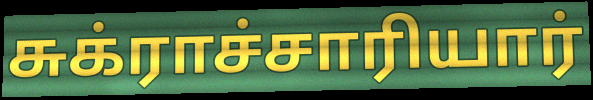
சுக்ராச்சாரியார்